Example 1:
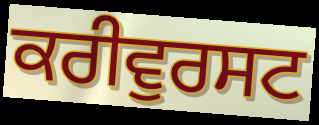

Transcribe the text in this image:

ਕਰੀਵੁਰਸਟ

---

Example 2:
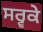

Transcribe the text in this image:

ਸਰ੍ਵਕੇ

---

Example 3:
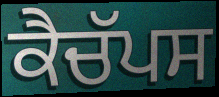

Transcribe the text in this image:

ਕੈਚੱਪਸ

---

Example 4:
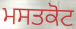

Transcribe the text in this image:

ਮਸਤਕੋਟ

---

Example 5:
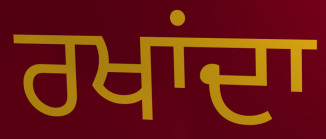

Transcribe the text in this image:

ਰਖਾਂਦਾ